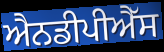
ਐਨਡੀਪੀਐੱਸ